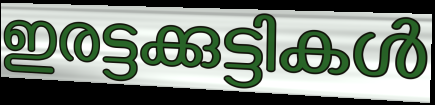
ഇരട്ടക്കുട്ടികൾ